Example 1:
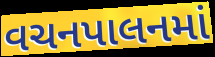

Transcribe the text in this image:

વચનપાલનમાં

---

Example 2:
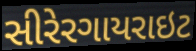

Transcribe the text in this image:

સીરેરગાયરાઇટ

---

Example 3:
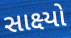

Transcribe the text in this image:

સાક્ષ્યો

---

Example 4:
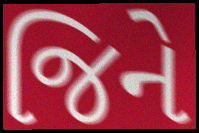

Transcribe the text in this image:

જિને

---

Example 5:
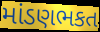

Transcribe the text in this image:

માંડણભકત